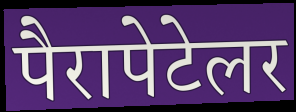
पैरापेटेलर